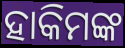
ହାକିମଙ୍କ